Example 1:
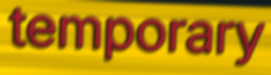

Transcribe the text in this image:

temporary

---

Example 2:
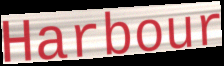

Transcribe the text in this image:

Harbour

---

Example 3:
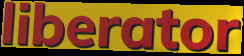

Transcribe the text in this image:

liberator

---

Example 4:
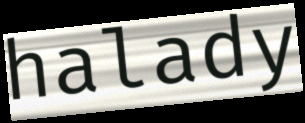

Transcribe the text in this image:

halady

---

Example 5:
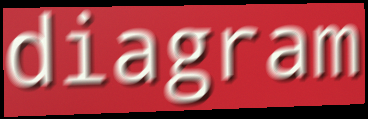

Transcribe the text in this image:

diagram